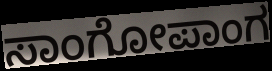
ಸಾಂಗೋಪಾಂಗ